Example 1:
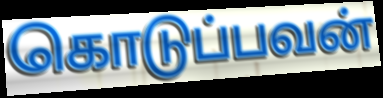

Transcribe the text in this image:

கொடுப்பவன்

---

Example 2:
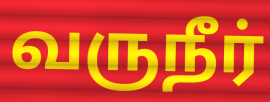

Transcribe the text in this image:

வருநீர்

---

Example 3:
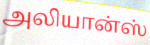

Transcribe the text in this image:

அலியான்ஸ்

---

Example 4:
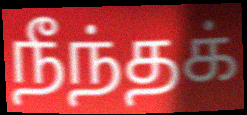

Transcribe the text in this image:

நீந்தக்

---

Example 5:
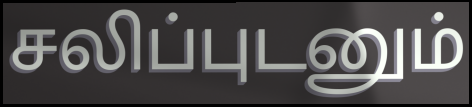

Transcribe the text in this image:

சலிப்புடனும்